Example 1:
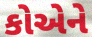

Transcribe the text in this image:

કોએને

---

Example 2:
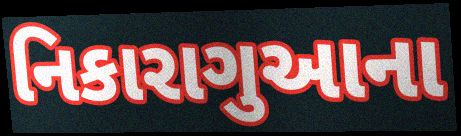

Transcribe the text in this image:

નિકારાગુઆના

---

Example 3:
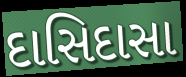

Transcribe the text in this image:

દાસિદાસા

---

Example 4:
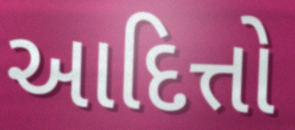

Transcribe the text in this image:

આદિત્તો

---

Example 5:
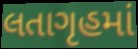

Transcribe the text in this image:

લતાગૃહમાં